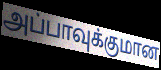
அப்பாவுக்குமான